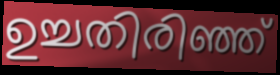
ഉച്ചതിരിഞ്ഞ്